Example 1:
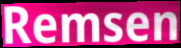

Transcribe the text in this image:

Remsen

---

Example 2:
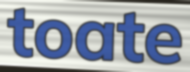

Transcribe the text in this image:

toate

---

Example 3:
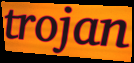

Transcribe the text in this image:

trojan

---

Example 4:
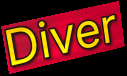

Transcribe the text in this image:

Diver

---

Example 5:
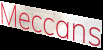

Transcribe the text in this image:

Meccans